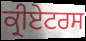
ਕ੍ਰੀਏਟਰਸ